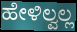
ಹೇಳಿಲ್ವಲ್ಲ